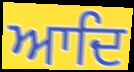
ਆਦਿ